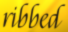
ribbed